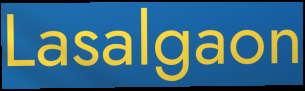
Lasalgaon